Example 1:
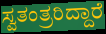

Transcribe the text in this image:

ಸ್ವತಂತ್ರರಿದ್ದಾರೆ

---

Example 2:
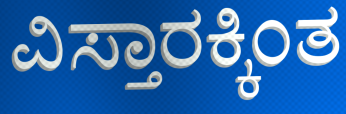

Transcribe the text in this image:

ವಿಸ್ತಾರಕ್ಕಿಂತ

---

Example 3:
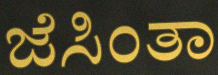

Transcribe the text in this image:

ಜೆಸಿಂತಾ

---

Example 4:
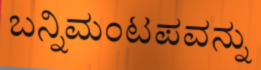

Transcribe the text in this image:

ಬನ್ನಿಮಂಟಪವನ್ನು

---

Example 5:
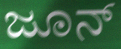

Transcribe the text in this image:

ಜೂನ್